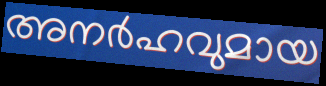
അനർഹവുമായ